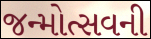
જન્મોત્સવની